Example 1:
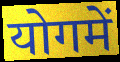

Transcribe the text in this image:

योगमें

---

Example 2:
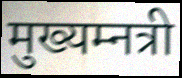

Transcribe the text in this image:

मुख्यम्नत्री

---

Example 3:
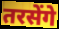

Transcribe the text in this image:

तरसेंगे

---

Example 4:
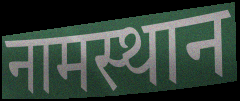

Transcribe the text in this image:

नामस्थान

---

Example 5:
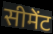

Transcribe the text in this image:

सीमेंट